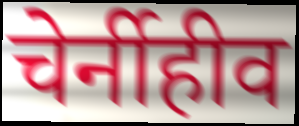
चेर्नीहीव